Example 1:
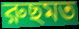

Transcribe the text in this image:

রুছমত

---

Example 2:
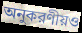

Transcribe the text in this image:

অনুকরণীয়ও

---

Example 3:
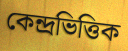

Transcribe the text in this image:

কেন্দ্রভিত্তিক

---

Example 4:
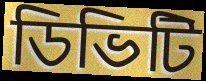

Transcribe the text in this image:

ডিভিটি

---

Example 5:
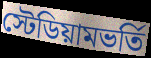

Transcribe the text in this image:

স্টেডিয়ামভর্তি